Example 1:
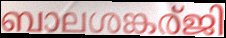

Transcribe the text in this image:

ബാലശങ്കര്ജി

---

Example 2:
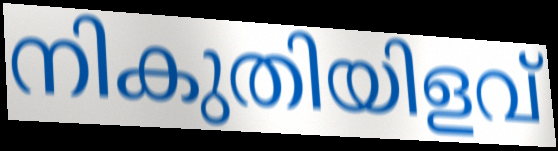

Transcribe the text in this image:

നികുതിയിളവ്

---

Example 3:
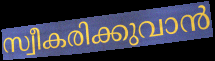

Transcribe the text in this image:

സ്വീകരിക്കുവാൻ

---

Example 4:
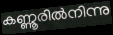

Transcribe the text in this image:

കണ്ണൂരിൽനിന്നു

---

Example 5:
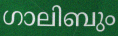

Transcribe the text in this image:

ഗാലിബും